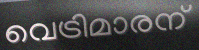
വെട്രിമാരന്